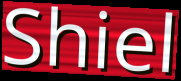
Shiel